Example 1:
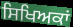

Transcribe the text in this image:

ਸਿਖਿਅਕਾਂ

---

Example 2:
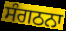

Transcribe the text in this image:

ਸੰਗਠਨਾ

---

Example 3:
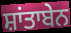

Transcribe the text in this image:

ਸ਼ਾਂਤਾਬੇਨ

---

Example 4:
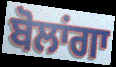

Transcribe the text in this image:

ਬੋਲਾਂਗਾ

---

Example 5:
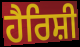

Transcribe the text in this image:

ਹੈਰਿਸ਼ੀ